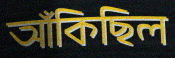
আঁকিছিল